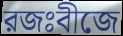
রজঃবীজে